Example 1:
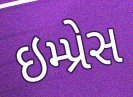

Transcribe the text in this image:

ઇમ્પ્રેસ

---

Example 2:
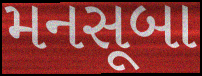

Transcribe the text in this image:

મનસૂબા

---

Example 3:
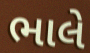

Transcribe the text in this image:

ભાલે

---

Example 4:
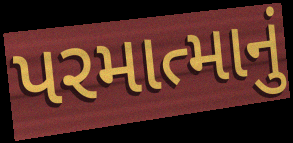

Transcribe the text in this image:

પરમાત્માનું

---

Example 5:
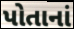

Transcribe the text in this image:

પોતાનાં